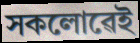
সকলোৱেই